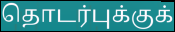
தொடர்புக்குக்